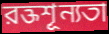
রক্তশূন্যতা